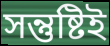
সন্তুষ্টিই